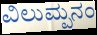
ವಿಲುಮ್ಪನಂ